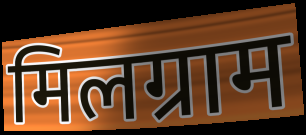
मिलग्राम